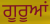
ਗੂਰੂਆਂ